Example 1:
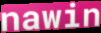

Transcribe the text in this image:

nawin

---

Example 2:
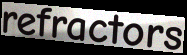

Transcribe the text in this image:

refractors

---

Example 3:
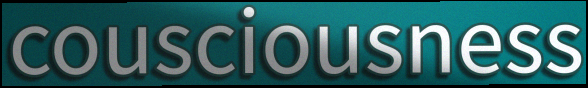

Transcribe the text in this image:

cousciousness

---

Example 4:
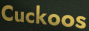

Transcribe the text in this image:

Cuckoos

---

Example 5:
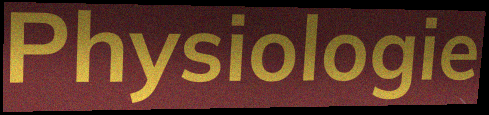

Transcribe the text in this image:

Physiologie